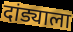
दांड्याला